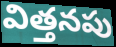
విత్తనపు